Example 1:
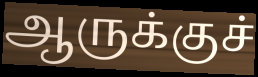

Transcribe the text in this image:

ஆருக்குச்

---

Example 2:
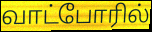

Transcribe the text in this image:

வாட்போரில்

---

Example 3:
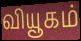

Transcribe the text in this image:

வியூகம்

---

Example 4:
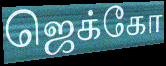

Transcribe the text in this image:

ஜெக்கோ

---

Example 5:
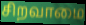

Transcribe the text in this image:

சிறவாமை